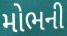
મોભની